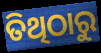
ତିଥିଠାରୁ